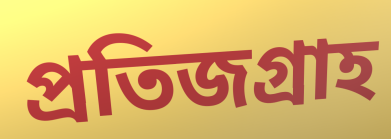
প্রতিজগ্রাহ